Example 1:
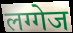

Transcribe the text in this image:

लग्गेज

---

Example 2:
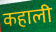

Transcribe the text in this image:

कहाली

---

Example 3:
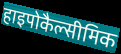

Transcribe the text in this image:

हाइपोकैल्सीमिक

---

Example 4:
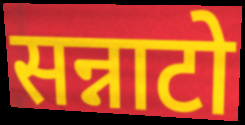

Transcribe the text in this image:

सन्नाटो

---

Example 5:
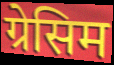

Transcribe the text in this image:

ग्रेसिम